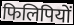
फिलिपियों